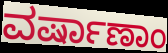
ವರ್ಷಾಣಾಂ